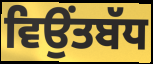
ਵਿਉਂਤਬੱਧ